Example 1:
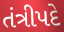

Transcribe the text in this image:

તંત્રીપદે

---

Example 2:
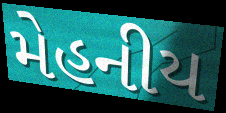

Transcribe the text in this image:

મેહનીય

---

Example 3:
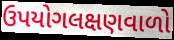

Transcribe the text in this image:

ઉપયોગલક્ષણવાળો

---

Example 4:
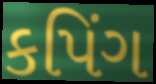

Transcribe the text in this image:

કપિંગ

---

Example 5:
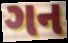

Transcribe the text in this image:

ગન